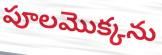
పూలమొక్కను